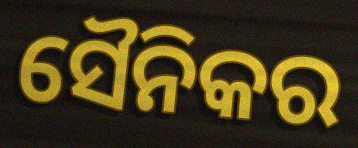
ସୈନିକର